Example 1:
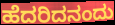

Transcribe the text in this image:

ಹೆದರಿದನಂದು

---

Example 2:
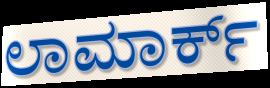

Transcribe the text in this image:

ಲಾಮಾರ್ಕ್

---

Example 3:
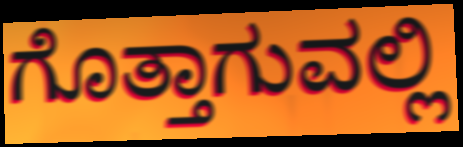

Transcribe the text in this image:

ಗೊತ್ತಾಗುವಲ್ಲಿ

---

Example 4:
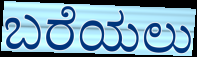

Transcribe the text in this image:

ಬರೆಯಲು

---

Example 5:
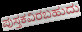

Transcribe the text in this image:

ಪುಸ್ತಕವಿರಬಹುದು